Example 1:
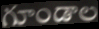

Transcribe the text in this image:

గూండాల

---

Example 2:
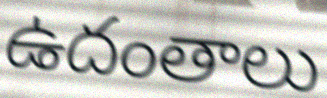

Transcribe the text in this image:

ఉదంతాలు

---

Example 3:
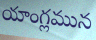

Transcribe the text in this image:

యాంగ్లమున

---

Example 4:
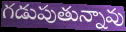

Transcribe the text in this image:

గడుపుతున్నావు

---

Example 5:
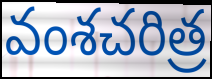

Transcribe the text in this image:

వంశచరిత్ర